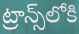
ట్రాన్స్‌లోకి